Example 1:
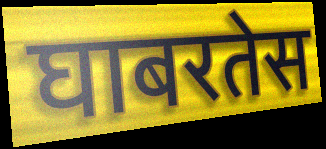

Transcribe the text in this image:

घाबरतेस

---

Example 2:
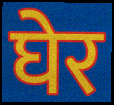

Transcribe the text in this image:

घेर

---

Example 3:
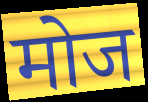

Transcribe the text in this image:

मोज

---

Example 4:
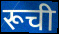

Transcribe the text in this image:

रूची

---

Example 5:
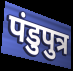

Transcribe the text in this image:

पंडुपुत्र